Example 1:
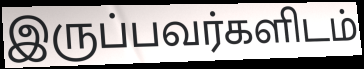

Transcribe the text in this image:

இருப்பவர்களிடம்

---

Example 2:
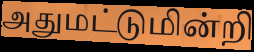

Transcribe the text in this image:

அதுமட்டுமின்றி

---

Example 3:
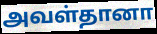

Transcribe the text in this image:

அவள்தானா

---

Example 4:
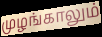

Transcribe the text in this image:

முழங்காலும்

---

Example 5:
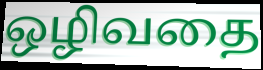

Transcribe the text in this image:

ஒழிவதை